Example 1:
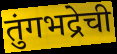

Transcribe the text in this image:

तुंगभद्रेची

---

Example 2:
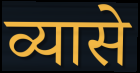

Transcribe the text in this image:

व्यासे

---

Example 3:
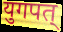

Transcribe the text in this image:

युगपत्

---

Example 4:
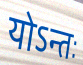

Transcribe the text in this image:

योऽन्तः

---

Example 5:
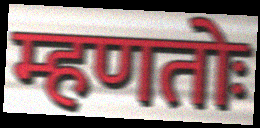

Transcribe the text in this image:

म्हणतोः